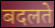
बदलते